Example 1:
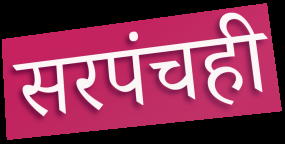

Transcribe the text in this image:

सरपंचही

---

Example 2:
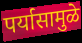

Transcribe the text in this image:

पर्यासामुळे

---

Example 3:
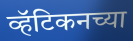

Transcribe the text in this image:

व्हॅटिकनच्या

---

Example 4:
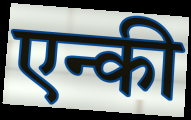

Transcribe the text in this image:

एन्की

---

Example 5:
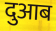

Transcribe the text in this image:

दुआब